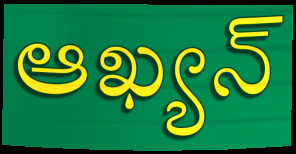
ఆఖ్యన్